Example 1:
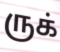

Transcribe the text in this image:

ருக்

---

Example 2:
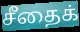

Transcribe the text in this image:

சீதைக்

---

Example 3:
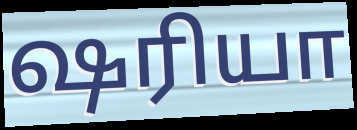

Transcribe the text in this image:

ஷரியா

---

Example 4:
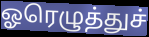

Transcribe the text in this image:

ஓரெழுத்துச்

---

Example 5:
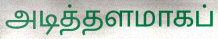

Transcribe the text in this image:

அடித்தளமாகப்